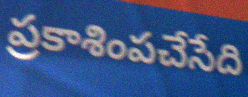
ప్రకాశింపచేసేది